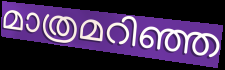
മാത്രമറിഞ്ഞ